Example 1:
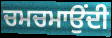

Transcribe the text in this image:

ਚਮਚਮਾਉਂਦੀ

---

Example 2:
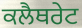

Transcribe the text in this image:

ਕਲੈਥਰੇਟ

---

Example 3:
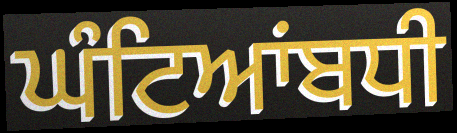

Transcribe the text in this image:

ਘੰਟਿਆਂਬਧੀ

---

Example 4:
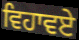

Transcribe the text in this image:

ਵਿਹਾਵਏ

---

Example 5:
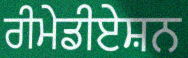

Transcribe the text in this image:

ਰੀਮੇਡੀਏਸ਼ਨ